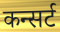
कन्सर्ट